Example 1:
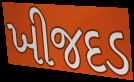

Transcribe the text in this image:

ખીજદડ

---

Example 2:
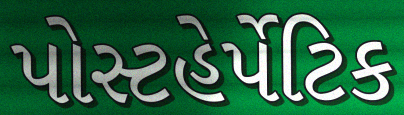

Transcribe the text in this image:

પોસ્ટહેર્પેટિક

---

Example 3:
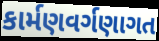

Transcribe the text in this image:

કાર્મણવર્ગણાગત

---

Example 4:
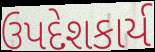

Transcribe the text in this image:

ઉપદેશકાર્ય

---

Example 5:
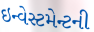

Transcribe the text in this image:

ઇન્વેસ્ટમેન્ટની